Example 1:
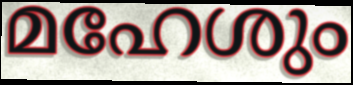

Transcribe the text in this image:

മഹേശും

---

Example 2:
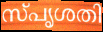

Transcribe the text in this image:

സ്പൃശതി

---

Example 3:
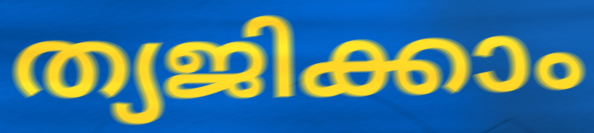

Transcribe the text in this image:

ത്യജിക്കാം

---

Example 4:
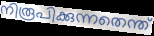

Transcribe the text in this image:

നിരൂപിക്കുന്നതെന്ത്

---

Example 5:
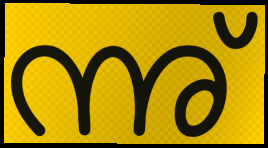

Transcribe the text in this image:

ന്നു്